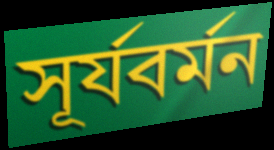
সূর্যবর্মন